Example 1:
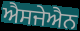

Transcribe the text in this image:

ਐਸਜੇਐਨ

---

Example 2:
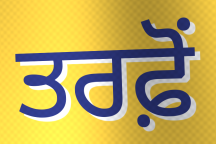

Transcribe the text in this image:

ਤਰਫ਼ੋਂ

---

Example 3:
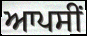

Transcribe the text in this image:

ਆਪਸੀਂ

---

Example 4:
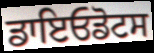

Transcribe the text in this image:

ਡਾਇਓਡੋਟਸ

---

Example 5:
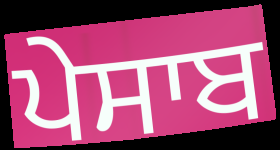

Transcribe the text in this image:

ਪੇਸਾਬ